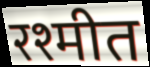
रश्मीत